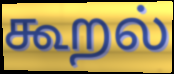
கூறல்